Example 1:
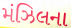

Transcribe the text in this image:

મંઝિલના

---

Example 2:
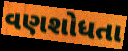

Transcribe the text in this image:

વણશોધતા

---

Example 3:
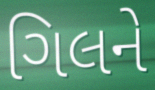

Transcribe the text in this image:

ગિલને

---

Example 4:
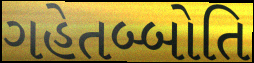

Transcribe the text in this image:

ગહેતબ્બોતિ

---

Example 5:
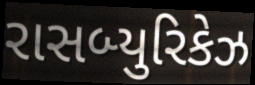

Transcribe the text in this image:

રાસબ્યુરિકેઝ